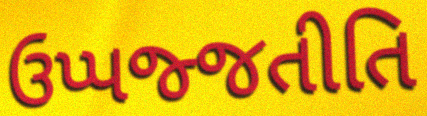
ઉપ્પજ્જતીતિ